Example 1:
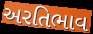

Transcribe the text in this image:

અરતિભાવ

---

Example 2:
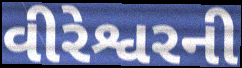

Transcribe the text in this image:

વીરેશ્વરની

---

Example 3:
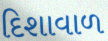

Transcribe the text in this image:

દિશાવાળ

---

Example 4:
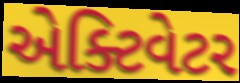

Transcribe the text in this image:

એક્ટિવેટર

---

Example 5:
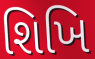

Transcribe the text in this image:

શિખિ